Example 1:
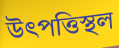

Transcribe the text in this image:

উৎপত্তিস্থল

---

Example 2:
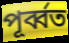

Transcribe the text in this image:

পূৰ্ব্বত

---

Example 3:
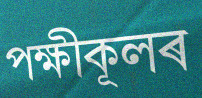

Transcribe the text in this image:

পক্ষীকূলৰ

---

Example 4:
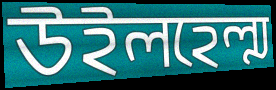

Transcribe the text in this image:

উইলহেল্ম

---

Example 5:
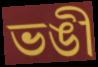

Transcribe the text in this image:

ভঙী